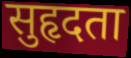
सुहृदता